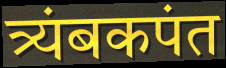
त्र्यंबकपंत